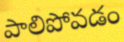
పాలిపోవడం